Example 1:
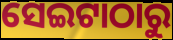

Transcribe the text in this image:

ସେଇଟାଠାରୁ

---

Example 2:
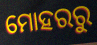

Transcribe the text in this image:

ମୋହରରୁ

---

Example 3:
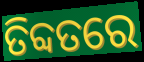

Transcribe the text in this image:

ତିବ୍ଦତରେ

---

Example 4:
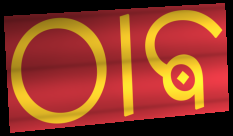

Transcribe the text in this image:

ଠାଵ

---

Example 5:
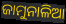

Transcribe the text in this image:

ଜାମୁନାଳିଆ